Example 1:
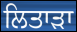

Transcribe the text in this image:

ਲਿਤਾੜਾ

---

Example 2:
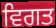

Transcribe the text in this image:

ਵਿਗਤ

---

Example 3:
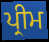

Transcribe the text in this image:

ਪ੍ਰੀਮ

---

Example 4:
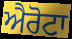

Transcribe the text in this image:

ਐਰੋਟਾ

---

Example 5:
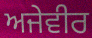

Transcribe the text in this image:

ਅਜੇਵੀਰ